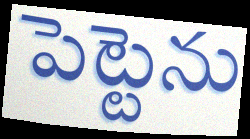
పెట్టెను